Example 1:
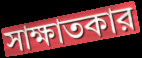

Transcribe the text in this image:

সাক্ষাতকার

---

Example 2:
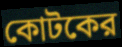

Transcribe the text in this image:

কোটকের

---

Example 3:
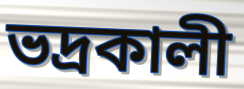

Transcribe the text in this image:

ভদ্রকালী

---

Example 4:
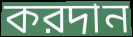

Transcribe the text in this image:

করদান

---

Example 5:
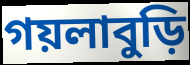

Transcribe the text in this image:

গয়লাবুড়ি